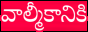
వాల్మీకానికి